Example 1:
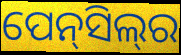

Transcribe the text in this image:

ପେନ୍‍ସିଲ୍‍ର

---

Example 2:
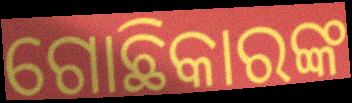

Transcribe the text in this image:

ଗୋଛିକାରଙ୍କ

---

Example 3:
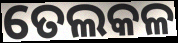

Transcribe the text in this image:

ତେଲକଳ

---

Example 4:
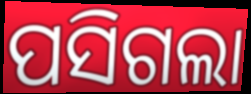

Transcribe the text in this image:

ପସିଗଲା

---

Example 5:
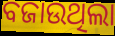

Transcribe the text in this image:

ବଜାଉଥିଲା